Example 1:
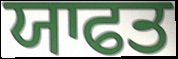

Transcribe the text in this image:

ਯਾਫਤ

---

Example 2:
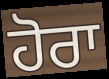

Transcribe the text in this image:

ਹੋਰਾ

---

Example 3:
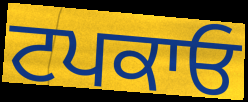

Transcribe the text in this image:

ਟਪਕਾਓ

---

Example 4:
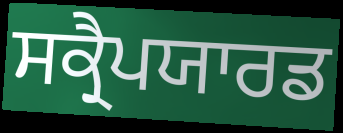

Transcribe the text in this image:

ਸਕ੍ਰੈਪਯਾਰਡ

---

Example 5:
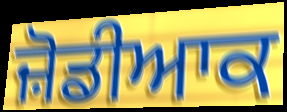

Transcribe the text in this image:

ਜ਼ੋਡੀਆਕ